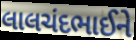
લાલચંદભાઈને